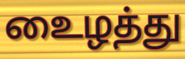
உைழத்து